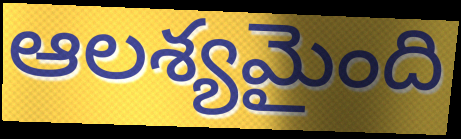
ఆలశ్యమైంది